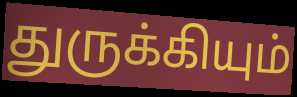
துருக்கியும்